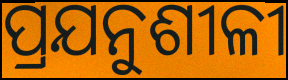
ପ୍ରଯନୁଶୀଳୀ